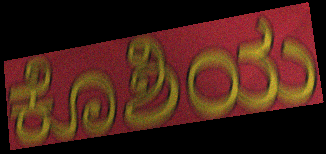
ಕೊಶಿಯ